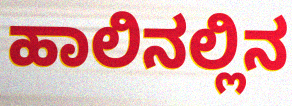
ಹಾಲಿನಲ್ಲಿನ